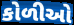
કોળીઓ